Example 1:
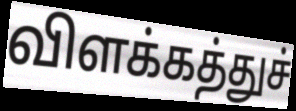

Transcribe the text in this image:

விளக்கத்துச்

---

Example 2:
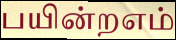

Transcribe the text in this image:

பயின்றஎம்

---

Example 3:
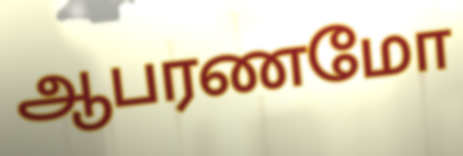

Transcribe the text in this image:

ஆபரணமோ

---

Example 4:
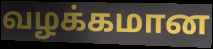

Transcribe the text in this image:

வழக்கமான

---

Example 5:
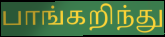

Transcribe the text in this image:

பாங்கறிந்து